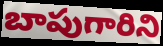
బాపుగారిని